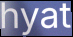
hyat